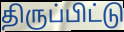
திருப்பிட்டு